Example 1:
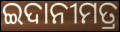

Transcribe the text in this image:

ଇଦାନୀମତ୍ର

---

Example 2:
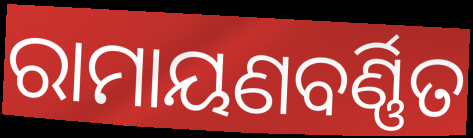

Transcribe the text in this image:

ରାମାୟଣବର୍ଣ୍ଣିତ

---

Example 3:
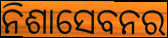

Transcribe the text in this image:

ନିଶାସେବନର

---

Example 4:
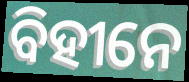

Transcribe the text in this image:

ବିହୀନେ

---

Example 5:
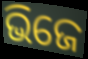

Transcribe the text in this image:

ଭିଜେ